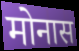
मोनास